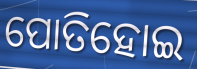
ପୋତିହୋଇ